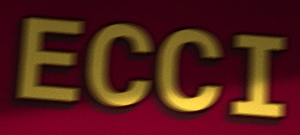
ECCI